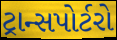
ટ્રાન્સપોર્ટરો